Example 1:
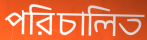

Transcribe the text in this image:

পরিচালিত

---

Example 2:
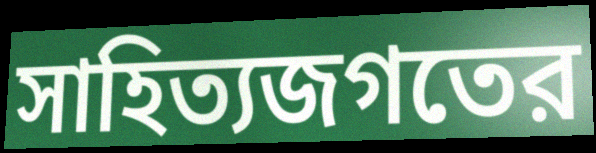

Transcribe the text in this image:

সাহিত্যজগতের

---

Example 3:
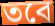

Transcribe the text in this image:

তবে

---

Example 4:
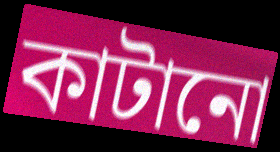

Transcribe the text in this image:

কাটানো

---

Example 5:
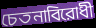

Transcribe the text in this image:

চেতনাবিরোধী